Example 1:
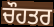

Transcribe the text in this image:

ਚੌਹਤਰ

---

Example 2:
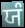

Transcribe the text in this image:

ਯੰ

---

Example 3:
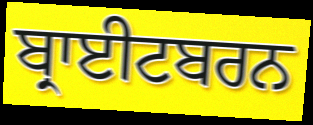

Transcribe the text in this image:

ਬ੍ਰਾਈਟਬਰਨ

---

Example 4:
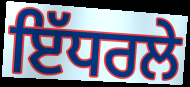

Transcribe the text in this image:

ਇੱਧਰਲੇ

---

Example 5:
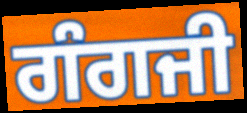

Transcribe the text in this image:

ਗੰਗਜੀ